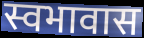
स्वभावास